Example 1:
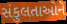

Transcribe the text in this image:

સંકુલતાઓને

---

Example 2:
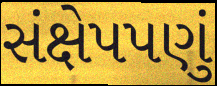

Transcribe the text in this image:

સંક્ષેપપણું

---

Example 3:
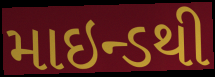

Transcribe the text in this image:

માઇન્ડથી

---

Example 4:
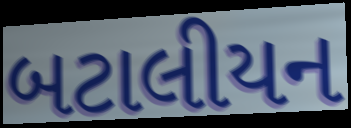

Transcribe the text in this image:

બટાલીયન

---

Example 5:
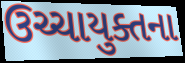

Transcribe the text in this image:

ઉચ્ચાયુક્તના